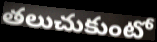
తలుచుకుంటో